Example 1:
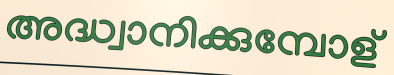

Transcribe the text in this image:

അദ്ധ്വാനിക്കുമ്പോള്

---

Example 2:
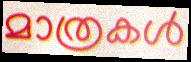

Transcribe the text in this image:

മാത്രകൾ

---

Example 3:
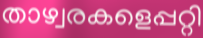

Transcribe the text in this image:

താഴ്വരകളെപ്പറ്റി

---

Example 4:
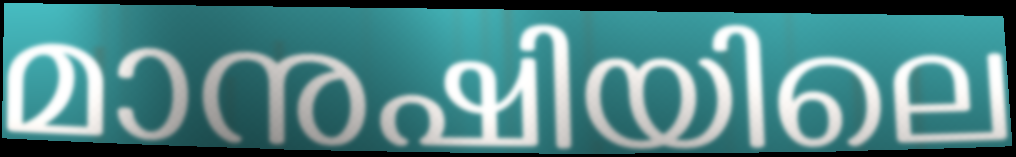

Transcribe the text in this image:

മാനുഷിയിലെ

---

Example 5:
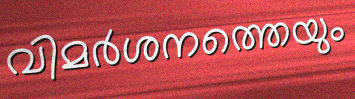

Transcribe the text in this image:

വിമർശനത്തെയും